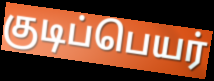
குடிப்பெயர்